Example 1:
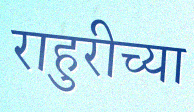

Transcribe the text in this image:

राहुरीच्या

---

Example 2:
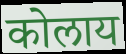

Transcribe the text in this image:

कोलाय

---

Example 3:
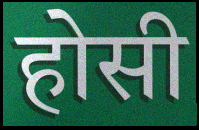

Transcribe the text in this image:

होसी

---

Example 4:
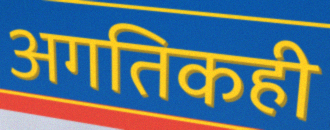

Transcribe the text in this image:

अगतिकही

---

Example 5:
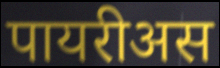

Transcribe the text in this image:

पायरीअस